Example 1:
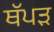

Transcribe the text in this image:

ਥੱਪੜ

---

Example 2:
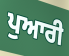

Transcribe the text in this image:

ਪੁਆਰੀ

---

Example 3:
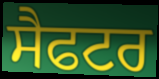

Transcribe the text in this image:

ਸੈਫਟਰ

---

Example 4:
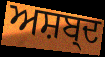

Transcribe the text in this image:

ਅਸ਼ਬ੍ਦ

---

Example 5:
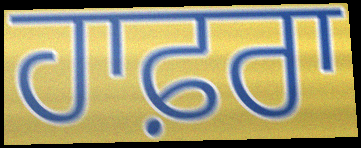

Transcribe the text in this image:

ਹਾਫ਼ਰਾ